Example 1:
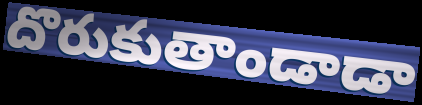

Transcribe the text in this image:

దొరుకుతాండాడా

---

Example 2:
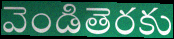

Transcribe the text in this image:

వెండితెరకు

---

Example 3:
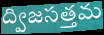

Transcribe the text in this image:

ద్విజసత్తమ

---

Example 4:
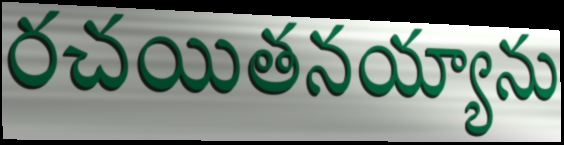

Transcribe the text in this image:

రచయితనయ్యాను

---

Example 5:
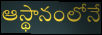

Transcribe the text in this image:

ఆస్థానంలోనే